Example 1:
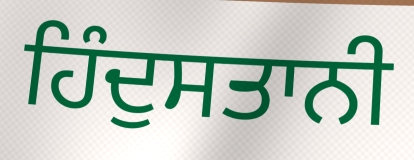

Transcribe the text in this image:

ਹਿੰਦੁਸਤਾਨੀ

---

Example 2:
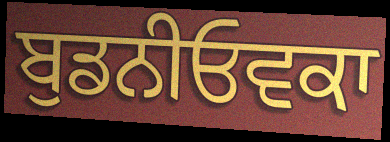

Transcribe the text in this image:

ਬੁਡਨੀਓਵਕਾ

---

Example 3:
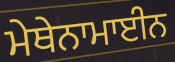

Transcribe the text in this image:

ਮੇਥੇਨਾਮਾਈਨ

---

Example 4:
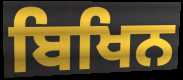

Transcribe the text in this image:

ਬਿਖਿਨ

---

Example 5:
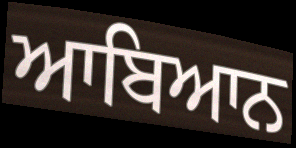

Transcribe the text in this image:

ਆਬਿਆਨ